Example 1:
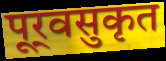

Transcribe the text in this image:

पूर्वसुकृत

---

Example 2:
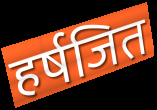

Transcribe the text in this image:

हर्षजित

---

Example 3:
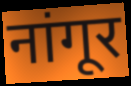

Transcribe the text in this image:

नांगूर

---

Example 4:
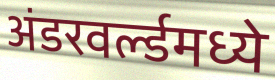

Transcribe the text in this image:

अंडरवर्ल्डमध्ये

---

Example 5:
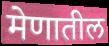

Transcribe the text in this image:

मेणातील